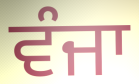
ਵੰਜਾ